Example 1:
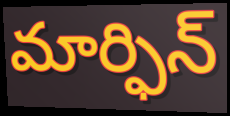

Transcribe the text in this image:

మార్ఫిన్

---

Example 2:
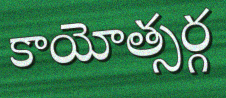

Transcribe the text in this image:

కాయోత్సర్గ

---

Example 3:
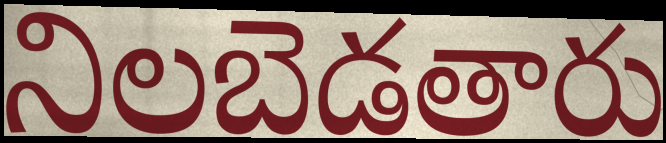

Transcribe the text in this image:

నిలబెడతారు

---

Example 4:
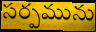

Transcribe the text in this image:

సర్పమును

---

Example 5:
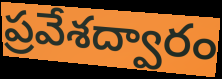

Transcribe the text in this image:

ప్రవేశద్వారం